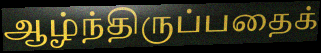
ஆழ்ந்திருப்பதைக்